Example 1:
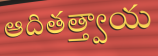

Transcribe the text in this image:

ఆదితత్త్వాయ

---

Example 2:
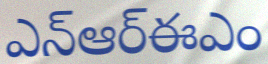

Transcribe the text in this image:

ఎన్ఆర్ఈఎం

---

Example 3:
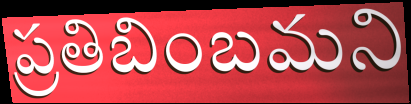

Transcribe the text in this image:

ప్రతిబింబమని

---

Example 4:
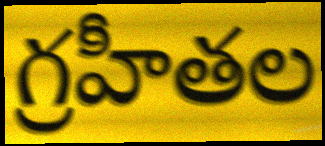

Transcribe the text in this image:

గ్రహీతల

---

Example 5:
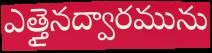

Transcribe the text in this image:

ఎత్తైనద్వారమును